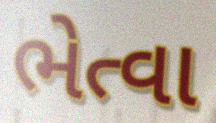
ભેત્વા